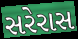
સરેરાસ